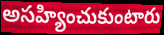
అసహ్యించుకుంటారు